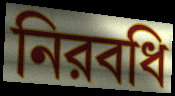
নিরবধি